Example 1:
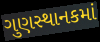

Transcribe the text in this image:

ગુણસ્થાનકમાં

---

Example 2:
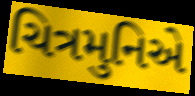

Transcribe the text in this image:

ચિત્રમુનિએ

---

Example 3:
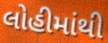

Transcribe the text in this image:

લોહીમાંથી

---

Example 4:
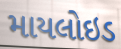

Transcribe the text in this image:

માયલોઇડ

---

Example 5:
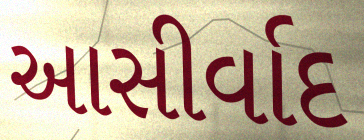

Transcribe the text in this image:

આસીર્વાદ